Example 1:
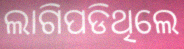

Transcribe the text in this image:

ଲାଗିପଡିଥିଲେ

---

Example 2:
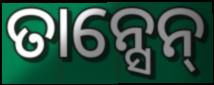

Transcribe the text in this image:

ତାନ୍ସେନ୍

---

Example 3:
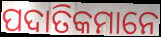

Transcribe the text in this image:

ପଦାତିକମାନେ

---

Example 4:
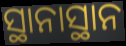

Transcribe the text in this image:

ସ୍ଥାନାସ୍ଥାନ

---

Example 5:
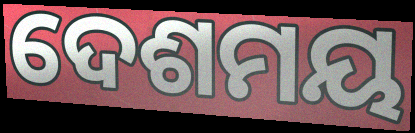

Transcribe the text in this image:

ଦେଶମୟ